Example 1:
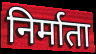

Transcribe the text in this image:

निर्माता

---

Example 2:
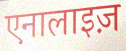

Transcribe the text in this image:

एनालाइज़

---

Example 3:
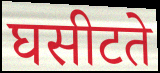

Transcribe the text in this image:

घसीटते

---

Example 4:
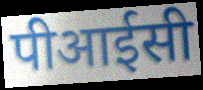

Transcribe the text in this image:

पीआईसी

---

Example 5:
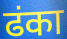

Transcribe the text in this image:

ढंका